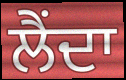
ਲੈਂਦਾ